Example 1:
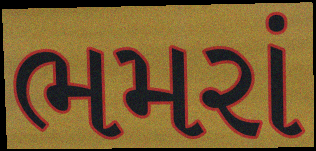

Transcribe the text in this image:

ભમરાં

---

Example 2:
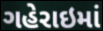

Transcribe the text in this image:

ગહેરાઇમાં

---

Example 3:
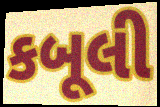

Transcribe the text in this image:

કબૂલી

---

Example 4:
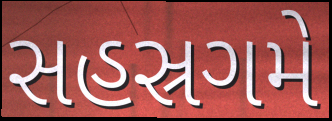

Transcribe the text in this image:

સહસ્રગમે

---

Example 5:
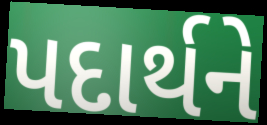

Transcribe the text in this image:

પદાર્થને